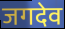
जगदेव